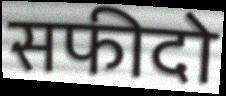
सफीदो